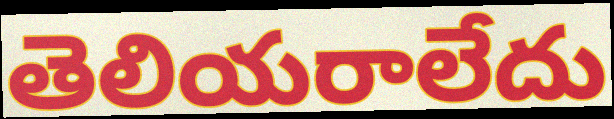
తెలియరాలేదు